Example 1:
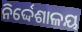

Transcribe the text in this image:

ନିର୍ଦ୍ଦେଶାଳୟ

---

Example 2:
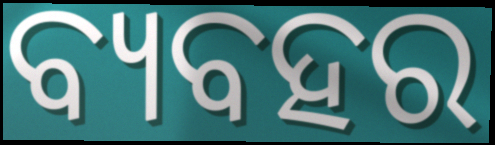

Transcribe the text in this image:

ବ୍ଯବହର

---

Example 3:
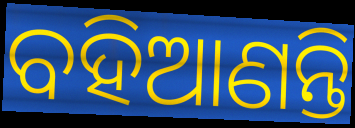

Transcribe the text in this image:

ବହିଆଣନ୍ତି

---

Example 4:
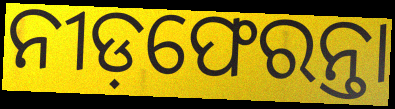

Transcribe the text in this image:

ନୀଡ଼ଫେରନ୍ତା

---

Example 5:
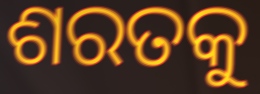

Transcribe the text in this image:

ଶରତକୁ